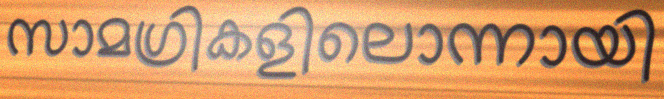
സാമഗ്രികളിലൊന്നായി